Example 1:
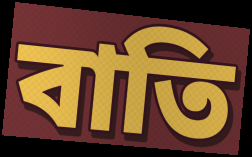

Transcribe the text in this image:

বাতি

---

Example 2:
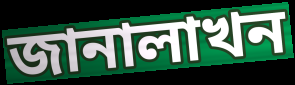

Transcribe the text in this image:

জানালাখন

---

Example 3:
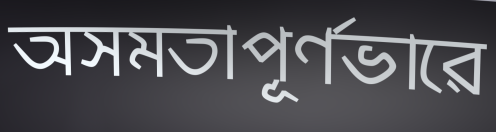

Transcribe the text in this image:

অসমতাপূৰ্ণভাৱে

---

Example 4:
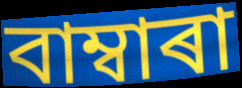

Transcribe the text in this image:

বাম্বাৰা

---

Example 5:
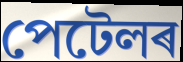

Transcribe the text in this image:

পেটেলৰ